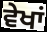
ਵੇਖਾਂ